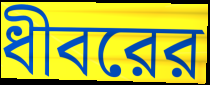
ধীবরের